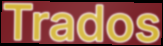
Trados